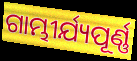
ଗାମ୍ଭୀର୍ଯ୍ୟପୂର୍ଣ୍ଣ